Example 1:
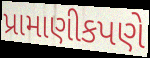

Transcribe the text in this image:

પ્રામાણીકપણે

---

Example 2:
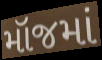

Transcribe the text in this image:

મૉજમાં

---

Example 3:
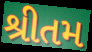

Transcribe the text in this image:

શ્રીતમ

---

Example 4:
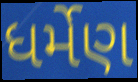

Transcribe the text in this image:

ધર્મેણ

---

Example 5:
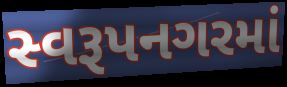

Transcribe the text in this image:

સ્વરૂપનગરમાં